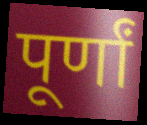
पूर्णां